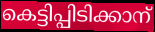
കെട്ടിപ്പിടിക്കാന്